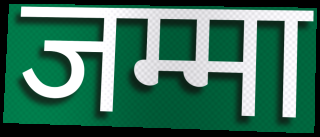
जम्मा